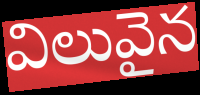
విలువైన